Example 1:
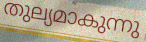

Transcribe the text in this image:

തുല്യമാകുന്നു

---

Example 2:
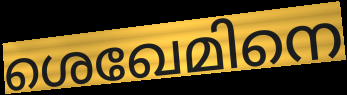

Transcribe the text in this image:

ശെഖേമിനെ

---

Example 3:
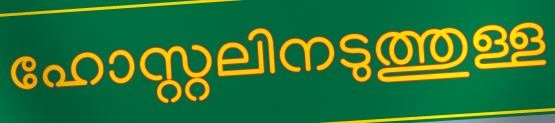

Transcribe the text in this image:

ഹോസ്റ്റലിനടുത്തുള്ള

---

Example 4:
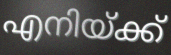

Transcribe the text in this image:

എനിയ്ക്ക്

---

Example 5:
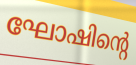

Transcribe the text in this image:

ഘോഷിന്റെ